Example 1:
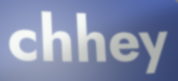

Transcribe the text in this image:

chhey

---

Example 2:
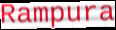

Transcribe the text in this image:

Rampura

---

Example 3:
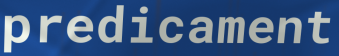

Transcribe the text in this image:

predicament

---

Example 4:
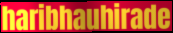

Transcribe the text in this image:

haribhauhirade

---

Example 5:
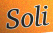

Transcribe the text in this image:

Soli